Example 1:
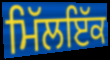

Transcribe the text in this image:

ਮਿੱਲਇੱਕ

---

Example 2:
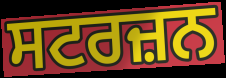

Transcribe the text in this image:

ਸਟਰਜ਼ਨ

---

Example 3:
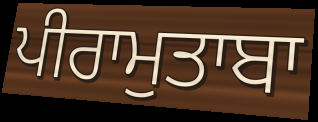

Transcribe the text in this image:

ਪੀਰਾਮੁਤਾਬਾ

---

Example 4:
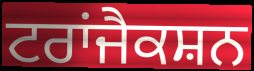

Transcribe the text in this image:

ਟਰਾਂਜੈਕਸ਼ਨ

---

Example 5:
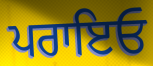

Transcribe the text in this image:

ਪਰਾਇਓ